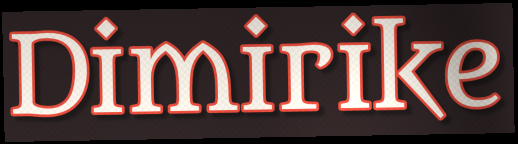
Dimirike